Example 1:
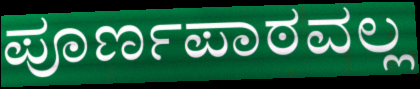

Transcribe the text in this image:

ಪೂರ್ಣಪಾಠವಲ್ಲ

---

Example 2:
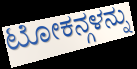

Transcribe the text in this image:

ಟೋಕನ್ಗಳನ್ನು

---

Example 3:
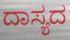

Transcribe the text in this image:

ದಾಸ್ಯದ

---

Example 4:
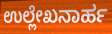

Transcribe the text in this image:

ಉಲ್ಲೇಖನಾರ್ಹ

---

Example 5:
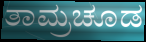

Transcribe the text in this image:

ತಾಮ್ರಚೂಡ